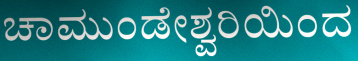
ಚಾಮುಂಡೇಶ್ವರಿಯಿಂದ